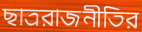
ছাত্ররাজনীতির